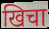
खिचा